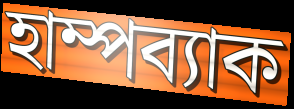
হাম্পব্যাক